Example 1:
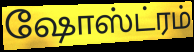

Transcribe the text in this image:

ஷோஸ்ட்ரம்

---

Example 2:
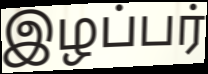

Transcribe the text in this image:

இழப்பர்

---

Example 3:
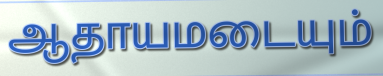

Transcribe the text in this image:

ஆதாயமடையும்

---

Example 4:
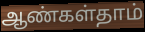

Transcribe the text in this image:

ஆண்கள்தாம்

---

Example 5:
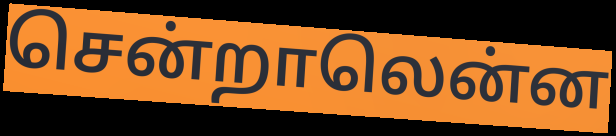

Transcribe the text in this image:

சென்றாலென்ன